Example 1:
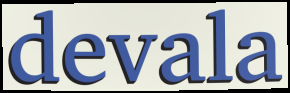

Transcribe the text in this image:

devala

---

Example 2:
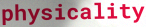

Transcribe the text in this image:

physicality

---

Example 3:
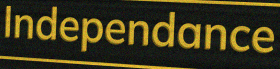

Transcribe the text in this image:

Independance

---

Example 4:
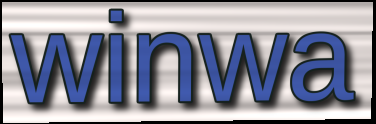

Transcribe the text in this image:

winwa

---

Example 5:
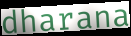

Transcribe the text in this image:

dharana